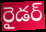
రైడర్